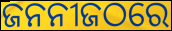
ଜନନୀଜଠରେ